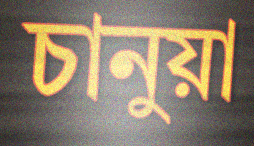
চানুয়া